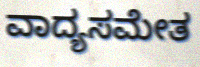
ವಾದ್ಯಸಮೇತ